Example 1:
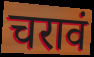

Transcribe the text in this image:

चरावं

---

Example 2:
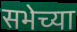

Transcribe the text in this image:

सभेच्या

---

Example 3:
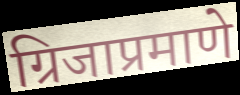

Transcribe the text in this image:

ग्रिजाप्रमाणे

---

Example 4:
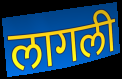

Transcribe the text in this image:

लागली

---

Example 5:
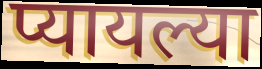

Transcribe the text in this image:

प्यायल्या